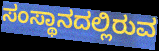
ಸಂಸ್ಥಾನದಲ್ಲಿರುವ